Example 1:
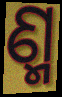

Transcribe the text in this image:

ଣ୍ମ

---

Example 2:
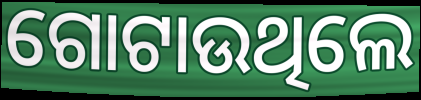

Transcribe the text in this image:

ଗୋଟାଉଥିଲେ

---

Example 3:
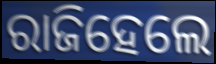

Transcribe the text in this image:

ରାଜିହେଲେ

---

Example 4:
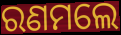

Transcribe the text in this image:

ରଣମଲେ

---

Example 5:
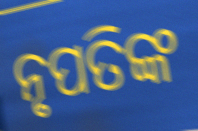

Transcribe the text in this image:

ନୃପତିଙ୍କ